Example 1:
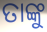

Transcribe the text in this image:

ତାଙ୍କୁ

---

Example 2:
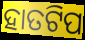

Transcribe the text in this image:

ହାତଟିପ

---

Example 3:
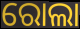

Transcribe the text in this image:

ରୋଲା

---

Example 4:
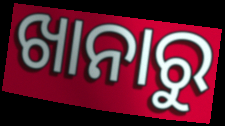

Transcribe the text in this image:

ଖାନାରୁ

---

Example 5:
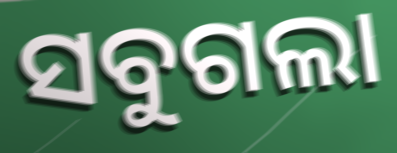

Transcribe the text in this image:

ସବୁଗଲା